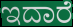
ಇದಾರೆ